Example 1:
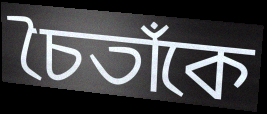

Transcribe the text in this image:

চৈতাঁকে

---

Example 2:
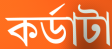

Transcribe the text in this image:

কর্ডাটা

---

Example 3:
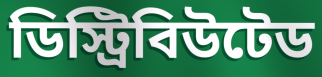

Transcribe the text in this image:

ডিস্ট্রিবিউটেড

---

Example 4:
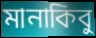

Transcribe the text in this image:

মানাকিবু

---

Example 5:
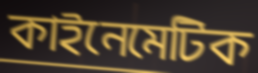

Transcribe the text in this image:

কাইনেমেটিক